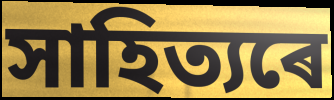
সাহিত্যৰে